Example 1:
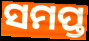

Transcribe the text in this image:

ସମପ୍ତ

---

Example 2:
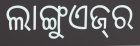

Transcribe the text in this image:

ଲାଙ୍ଗୁଏଜ୍‌ର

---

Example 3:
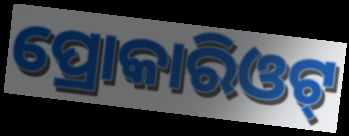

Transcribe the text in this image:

ପ୍ରୋକାରିଓଟ୍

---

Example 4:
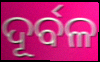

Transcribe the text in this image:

ଦୂର୍ବଳ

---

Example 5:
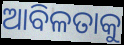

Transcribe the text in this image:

ଆବିଳତାକୁ